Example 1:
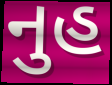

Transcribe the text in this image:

નુહ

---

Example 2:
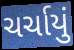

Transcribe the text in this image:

ચર્ચાયું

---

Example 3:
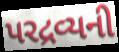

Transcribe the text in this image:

પરદ્રવ્યની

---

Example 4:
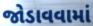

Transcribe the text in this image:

જોડાવવામાં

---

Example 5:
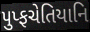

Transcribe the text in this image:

પુપ્ફચેતિયાનિ